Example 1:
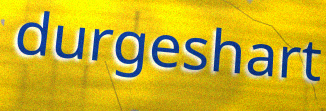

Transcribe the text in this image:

durgeshart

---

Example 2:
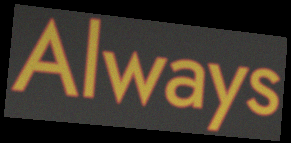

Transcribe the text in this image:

Always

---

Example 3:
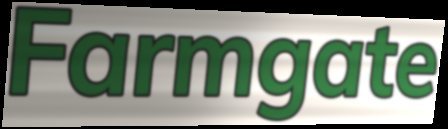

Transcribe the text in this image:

Farmgate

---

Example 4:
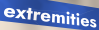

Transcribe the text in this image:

extremities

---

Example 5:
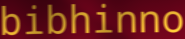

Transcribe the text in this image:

bibhinno